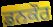
ਡਨਕੌਰ